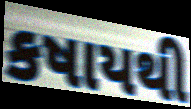
કષાયથી